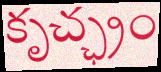
కృచ్ఛ్రం